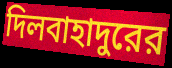
দিলবাহাদুরের